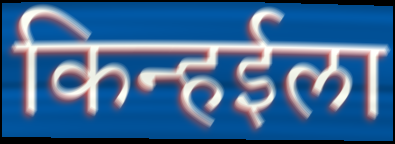
किन्हईला